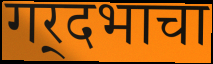
गर्दभाचा